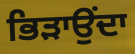
ਭਿੜਾਉਂਦਾ